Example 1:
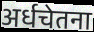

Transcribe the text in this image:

अर्धचेतना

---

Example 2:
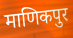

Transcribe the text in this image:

माणिकपुर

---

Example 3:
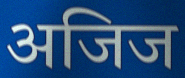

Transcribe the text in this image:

अजिज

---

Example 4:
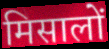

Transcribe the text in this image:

मिसालों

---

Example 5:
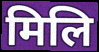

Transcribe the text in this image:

मिलि